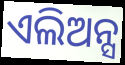
ଏଲିଅନ୍ସ